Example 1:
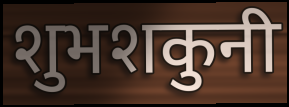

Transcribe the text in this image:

शुभशकुनी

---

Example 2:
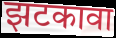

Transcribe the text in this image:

झटकावा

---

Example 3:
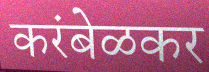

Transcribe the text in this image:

करंबेळकर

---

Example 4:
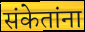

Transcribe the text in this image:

संकेतांना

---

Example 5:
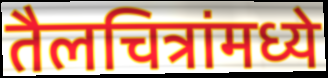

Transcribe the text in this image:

तैलचित्रांमध्ये